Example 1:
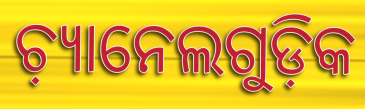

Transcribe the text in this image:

ଚ଼୍ୟାନେଲଗୁଡ଼ିକ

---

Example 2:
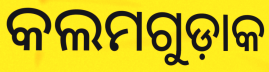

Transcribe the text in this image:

କଲମଗୁଡ଼ାକ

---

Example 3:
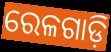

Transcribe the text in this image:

ରେଳଗାଡ଼ି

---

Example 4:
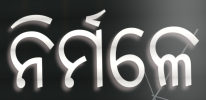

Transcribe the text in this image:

ନିର୍ମଳେ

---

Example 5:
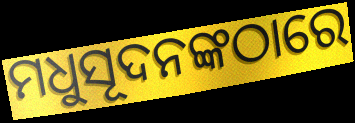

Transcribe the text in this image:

ମଧୁସୂଦନଙ୍କଠାରେ